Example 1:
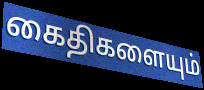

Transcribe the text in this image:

கைதிகளையும்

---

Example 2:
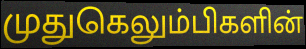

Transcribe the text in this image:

முதுகெலும்பிகளின்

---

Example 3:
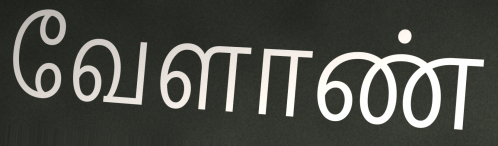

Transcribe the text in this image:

வேளாண்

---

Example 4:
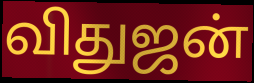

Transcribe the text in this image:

விதுஜன்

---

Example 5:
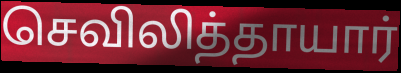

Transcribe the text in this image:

செவிலித்தாயார்